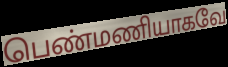
பெண்மணியாகவே